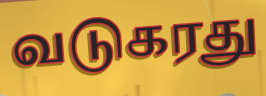
வடுகரது